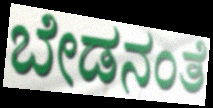
ಬೇಡನಂತೆ